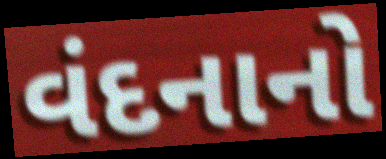
વંદનાનો